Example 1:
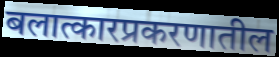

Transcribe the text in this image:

बलात्कारप्रकरणातील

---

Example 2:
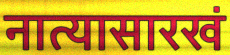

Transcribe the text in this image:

नात्यासारखं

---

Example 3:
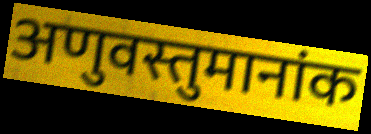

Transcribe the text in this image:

अणुवस्तुमानांक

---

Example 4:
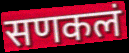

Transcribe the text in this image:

सणकलं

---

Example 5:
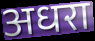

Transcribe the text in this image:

अधरा